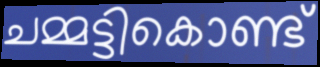
ചമ്മട്ടികൊണ്ട്